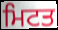
ਮਿਟਤ